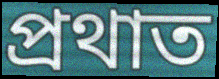
প্ৰথাত